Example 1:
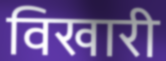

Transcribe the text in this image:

विखारी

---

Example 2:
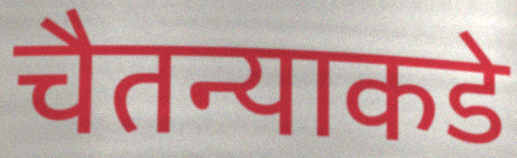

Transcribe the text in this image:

चैतन्याकडे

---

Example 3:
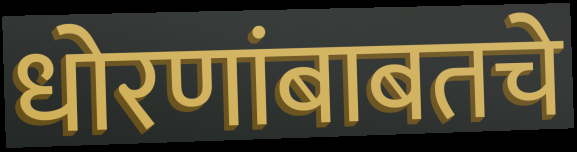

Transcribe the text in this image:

धोरणांबाबतचे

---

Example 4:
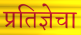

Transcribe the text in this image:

प्रतिज्ञेचा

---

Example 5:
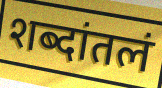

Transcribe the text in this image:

शब्दांतलं